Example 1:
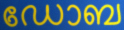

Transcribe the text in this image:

ഡോബ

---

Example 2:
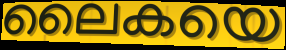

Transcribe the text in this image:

ലൈകയെ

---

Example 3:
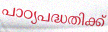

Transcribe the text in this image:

പാഠ്യപദ്ധതിക്ക്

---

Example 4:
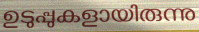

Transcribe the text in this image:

ഉടുപ്പുകളായിരുന്നു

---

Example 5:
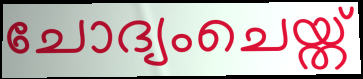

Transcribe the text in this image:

ചോദ്യംചെയ്ത്